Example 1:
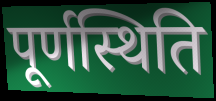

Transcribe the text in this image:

पूर्णस्थिति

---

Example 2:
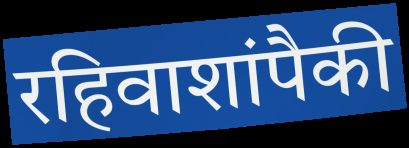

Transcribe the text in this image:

रहिवाशांपैकी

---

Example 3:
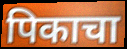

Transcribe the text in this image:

पिकाचा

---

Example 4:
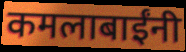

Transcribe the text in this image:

कमलाबाईंनी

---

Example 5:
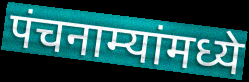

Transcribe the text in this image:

पंचनाम्यांमध्ये